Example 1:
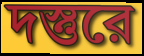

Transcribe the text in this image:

দস্তুরে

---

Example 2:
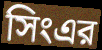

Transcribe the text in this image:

সিংএর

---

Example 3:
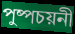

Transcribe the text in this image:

পুষ্পচয়নী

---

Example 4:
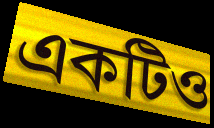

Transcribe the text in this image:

একটিও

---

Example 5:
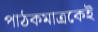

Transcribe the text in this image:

পাঠকমাত্রকেই